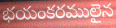
భయంకరములైన